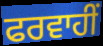
ਫਰਵਾਹੀਂ